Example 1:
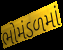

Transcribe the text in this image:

ભોમંડળમાં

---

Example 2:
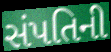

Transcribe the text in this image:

સંપતિની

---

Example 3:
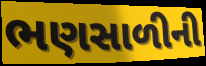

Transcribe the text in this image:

ભણસાળીની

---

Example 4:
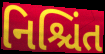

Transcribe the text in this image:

નિશ્ચિંત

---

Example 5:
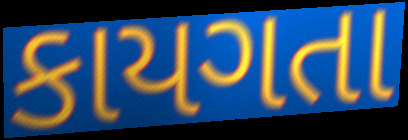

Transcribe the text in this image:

કાયગતા